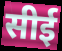
सीई